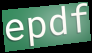
epdf